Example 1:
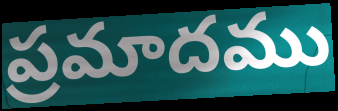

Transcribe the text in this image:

ప్రమాదము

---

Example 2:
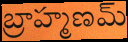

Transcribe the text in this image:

బ్రాహ్మణమ్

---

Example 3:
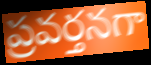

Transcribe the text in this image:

ప్రవర్తనగా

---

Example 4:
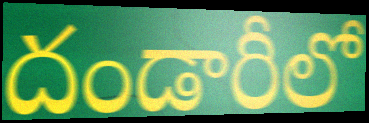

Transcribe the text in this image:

దండారీలో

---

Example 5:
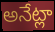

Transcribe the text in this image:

అనేట్లా